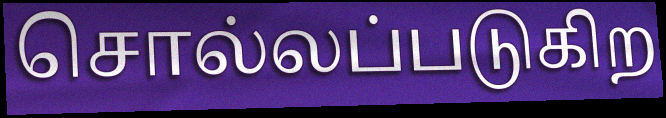
சொல்லப்படுகிற